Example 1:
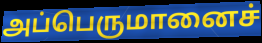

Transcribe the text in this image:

அப்பெருமானைச்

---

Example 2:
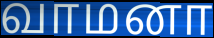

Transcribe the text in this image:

வாமனா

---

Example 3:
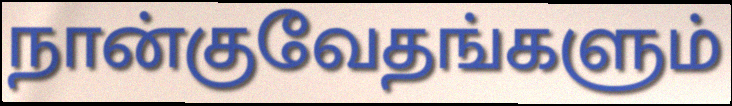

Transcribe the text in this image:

நான்குவேதங்களும்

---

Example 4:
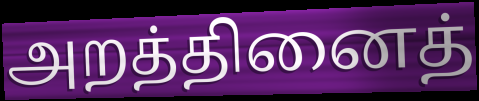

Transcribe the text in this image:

அறத்தினைத்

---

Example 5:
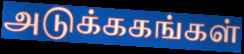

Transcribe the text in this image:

அடுக்ககங்கள்